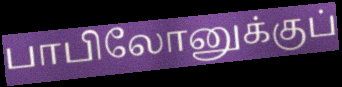
பாபிலோனுக்குப்